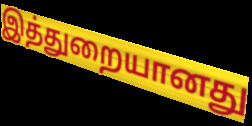
இத்துறையானது